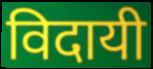
विदायी